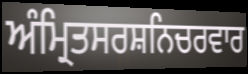
ਅੰਮ੍ਰਿਤਸਰਸ਼ਨਿਚਰਵਾਰ